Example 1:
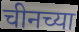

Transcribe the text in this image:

चीनच्या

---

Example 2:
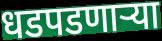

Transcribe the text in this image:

धडपडणाऱ्या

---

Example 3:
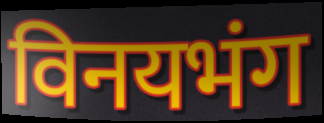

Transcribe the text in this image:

विनयभंग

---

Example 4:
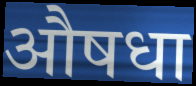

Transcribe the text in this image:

औषधा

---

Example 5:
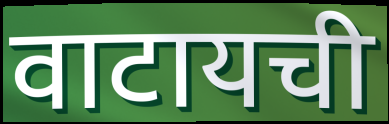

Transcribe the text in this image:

वाटायची